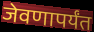
जेवणापर्यंत